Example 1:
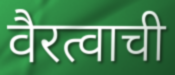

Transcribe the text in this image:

वैरत्वाची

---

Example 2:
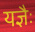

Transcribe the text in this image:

यज्ञैः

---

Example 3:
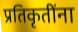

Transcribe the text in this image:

प्रतिकृतींना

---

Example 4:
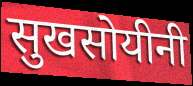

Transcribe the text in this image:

सुखसोयीनी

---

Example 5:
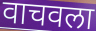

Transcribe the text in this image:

वाचवला